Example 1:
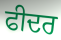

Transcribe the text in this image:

ਫੀਦਰ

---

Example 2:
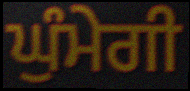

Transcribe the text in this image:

ਘੁੰਮੇਗੀ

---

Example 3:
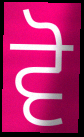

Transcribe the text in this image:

ਵੋ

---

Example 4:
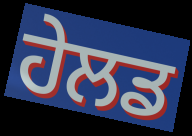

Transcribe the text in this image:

ਹੇਲਡ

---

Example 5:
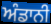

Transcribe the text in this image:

ਅੰਡਾਨੀ